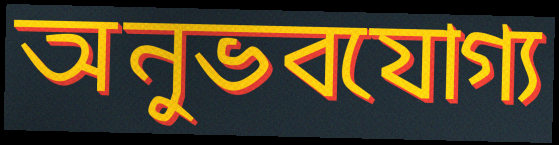
অনুভবযোগ্য